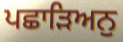
ਪਛਾੜਿਅਨੁ